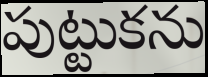
పుట్టుకను